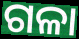
ଗଳା